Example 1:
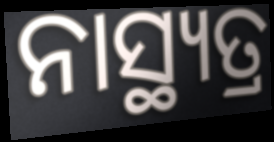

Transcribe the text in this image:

ନାସ୍ଥ୍ୟତ୍ର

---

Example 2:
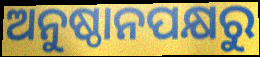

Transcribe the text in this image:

ଅନୁଷ୍ଠାନପକ୍ଷରୁ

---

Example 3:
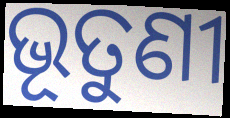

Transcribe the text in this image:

ଭୂତୁଣୀ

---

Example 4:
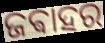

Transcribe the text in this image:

ଜଵାହର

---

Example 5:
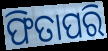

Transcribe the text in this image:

ଫିତାପରି